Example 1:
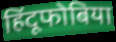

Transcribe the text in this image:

हिंदूफोबिया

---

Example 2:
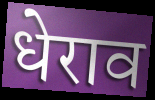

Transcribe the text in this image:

धेराव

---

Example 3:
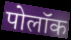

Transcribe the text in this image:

पोलॉक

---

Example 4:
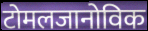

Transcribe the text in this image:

टोमलजानोविक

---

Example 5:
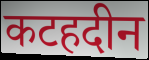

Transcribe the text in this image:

कटहदीन